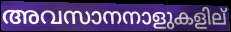
അവസാനനാളുകളില്